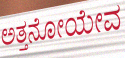
ಅತ್ತನೋಯೇವ